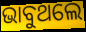
ଭାବୁଥଲେ